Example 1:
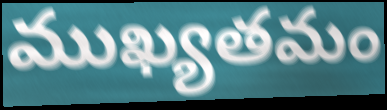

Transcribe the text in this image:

ముఖ్యతమం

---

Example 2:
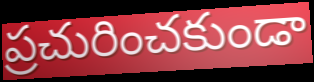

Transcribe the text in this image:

ప్రచురించకుండా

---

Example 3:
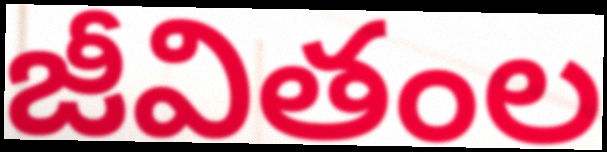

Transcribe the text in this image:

జీవితంల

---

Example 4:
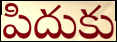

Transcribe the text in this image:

పిదుకు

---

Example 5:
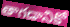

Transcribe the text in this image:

తాగడానికో